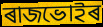
ৰাজভোইৰ